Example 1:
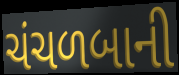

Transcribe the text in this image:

ચંચળબાની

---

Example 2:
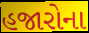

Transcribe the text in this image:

હજારોના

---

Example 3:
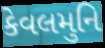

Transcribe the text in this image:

કેવલમુનિ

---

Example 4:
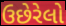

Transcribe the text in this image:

ઉછેરેલો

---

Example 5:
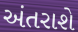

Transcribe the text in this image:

અંતરાશે